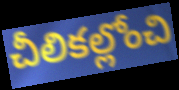
చీలికల్లోంచి